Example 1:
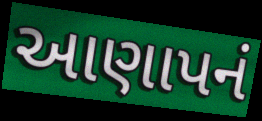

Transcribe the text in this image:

આણાપનં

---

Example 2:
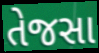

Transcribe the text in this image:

તેજસા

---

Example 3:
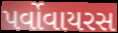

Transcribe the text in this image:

પર્વોવાયરસ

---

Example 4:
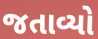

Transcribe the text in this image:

જતાવ્યો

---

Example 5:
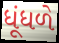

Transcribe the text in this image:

ધૂંધળે